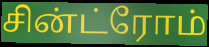
சின்ட்ரோம்